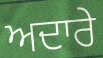
ਅਦਾਰੇ